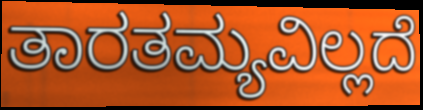
ತಾರತಮ್ಯವಿಲ್ಲದೆ